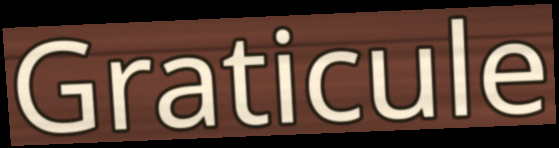
Graticule